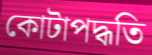
কোটাপদ্ধতি